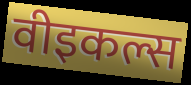
वीइकल्‍स